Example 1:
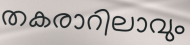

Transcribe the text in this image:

തകരാറിലാവും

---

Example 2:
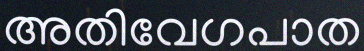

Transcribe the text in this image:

അതിവേഗപാത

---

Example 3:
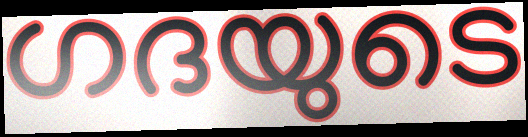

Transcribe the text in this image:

ഗദയുടെ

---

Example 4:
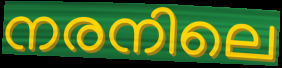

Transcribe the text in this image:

നരനിലെ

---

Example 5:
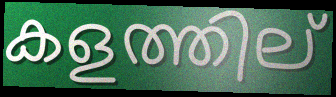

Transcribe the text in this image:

കളത്തില്